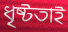
ধৃষ্টতাই